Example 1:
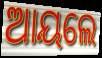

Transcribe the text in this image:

ଆୟଲେ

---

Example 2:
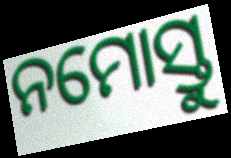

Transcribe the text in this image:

ନମୋସ୍ତୁ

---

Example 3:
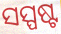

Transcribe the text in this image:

ସସ୍ପଷ୍ଟ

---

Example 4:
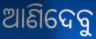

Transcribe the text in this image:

ଆଣିଦେବୁ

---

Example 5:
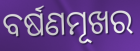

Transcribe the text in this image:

ବର୍ଷଣମୂଖର